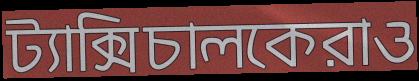
ট্যাক্সিচালকেরাও